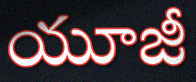
యూజీ